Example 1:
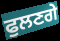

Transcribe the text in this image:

ਫੁਲਣਗੇ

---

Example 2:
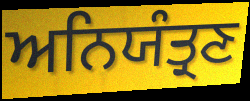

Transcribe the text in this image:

ਅਨਿਯੰਤ੍ਰਣ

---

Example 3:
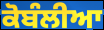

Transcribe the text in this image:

ਕੋਬੰਲੀਆ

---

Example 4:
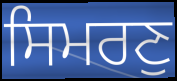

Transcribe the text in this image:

ਸਿਮਰਣੁ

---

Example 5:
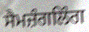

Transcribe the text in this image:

ਸੈਮਜ਼ੰਗਲਿੰਗ